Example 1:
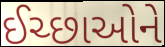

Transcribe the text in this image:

ઈચ્છાઓને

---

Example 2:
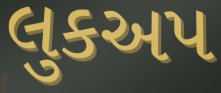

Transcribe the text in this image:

લુકઅપ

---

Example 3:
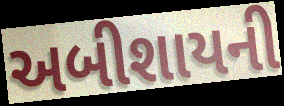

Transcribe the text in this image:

અબીશાયની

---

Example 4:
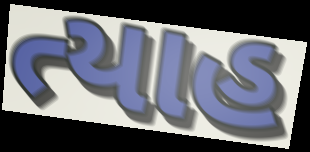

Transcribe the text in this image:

ત્યાહ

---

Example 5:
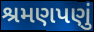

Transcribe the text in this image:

શ્રમણપણું